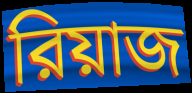
রিয়াজ